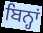
ਬਿਨ੍ਹਾਂ